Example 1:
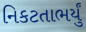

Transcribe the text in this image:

નિકટતાભર્યું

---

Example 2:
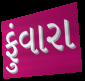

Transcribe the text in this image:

ફુંવારા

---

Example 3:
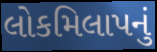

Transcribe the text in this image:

લોકમિલાપનું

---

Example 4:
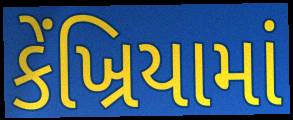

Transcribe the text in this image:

કેંખ્રિયામાં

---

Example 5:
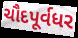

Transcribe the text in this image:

ચૌદપૂર્વધર